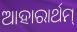
ଆହାରାର୍ଥମ୍